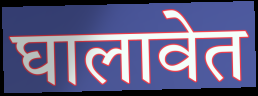
घालावेत